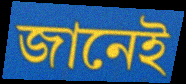
জানেই